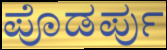
ಪೊಡರ್ಪು